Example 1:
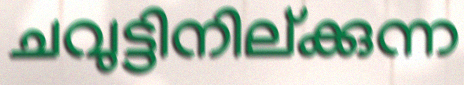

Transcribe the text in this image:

ചവുട്ടിനില്ക്കുന്ന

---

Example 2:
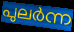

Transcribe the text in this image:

പുലർന്ന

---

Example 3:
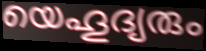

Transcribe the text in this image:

യെഹൂദ്യരും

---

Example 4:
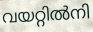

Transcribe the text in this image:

വയറ്റിൽനി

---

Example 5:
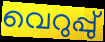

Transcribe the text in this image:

വെറുപ്പു്